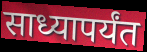
साध्यापर्यंत